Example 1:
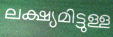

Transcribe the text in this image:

ലക്ഷ്യമിട്ടുള്ള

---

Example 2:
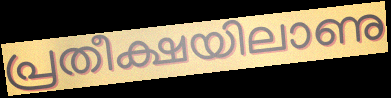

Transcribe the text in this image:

പ്രതീക്ഷയിലാണു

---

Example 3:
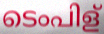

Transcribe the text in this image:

ടെംപിള്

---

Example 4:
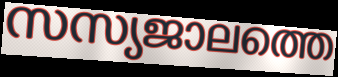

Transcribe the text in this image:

സസ്യജാലത്തെ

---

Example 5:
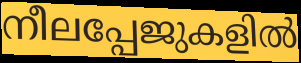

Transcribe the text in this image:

നീലപ്പേജുകളിൽ